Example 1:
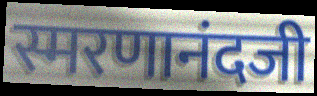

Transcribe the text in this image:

स्मरणानंदजी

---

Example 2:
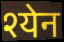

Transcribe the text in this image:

श्येन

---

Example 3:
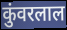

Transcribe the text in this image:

कुंवरलाल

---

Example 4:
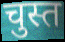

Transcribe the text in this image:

चुस्त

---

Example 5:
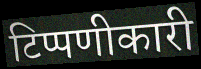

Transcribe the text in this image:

टिप्पणीकारी